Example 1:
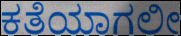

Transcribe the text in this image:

ಕತೆಯಾಗಲೀ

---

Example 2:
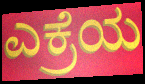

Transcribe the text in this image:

ಎಕ್ರೆಯ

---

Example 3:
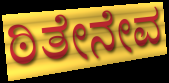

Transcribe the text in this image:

ಠಿತೇನೇವ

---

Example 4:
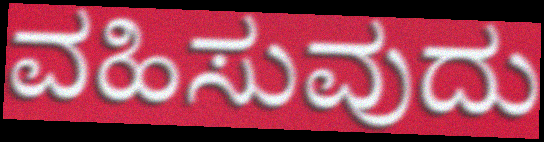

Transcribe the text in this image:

ವಹಿಸುವುದು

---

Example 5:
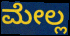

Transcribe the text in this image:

ಮೇಲ್ಲ